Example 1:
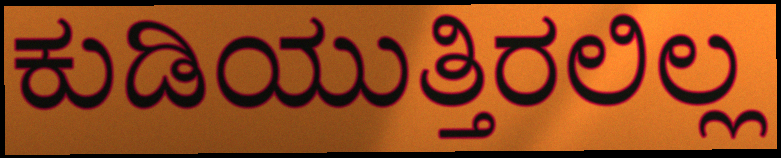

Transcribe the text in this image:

ಕುಡಿಯುತ್ತಿರಲಿಲ್ಲ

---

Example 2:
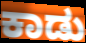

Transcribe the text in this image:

ಕಾಡು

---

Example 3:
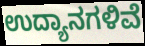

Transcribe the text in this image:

ಉದ್ಯಾನಗಳಿವೆ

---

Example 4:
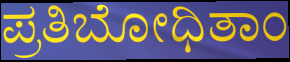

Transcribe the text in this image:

ಪ್ರತಿಬೋಧಿತಾಂ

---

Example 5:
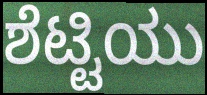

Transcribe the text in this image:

ಶೆಟ್ಟಿಯು